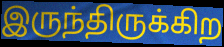
இருந்திருக்கிற